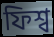
ফিশ্ব